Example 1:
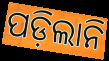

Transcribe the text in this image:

ପଡ଼ିଲାନି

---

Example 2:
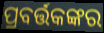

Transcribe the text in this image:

ପ୍ରବର୍ତ୍ତକଙ୍କର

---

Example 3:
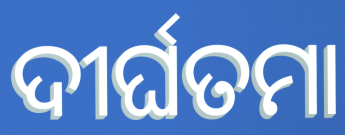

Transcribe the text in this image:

ଦୀର୍ଘତମା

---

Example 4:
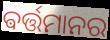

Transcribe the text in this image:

ଵର୍ତ୍ତମାନର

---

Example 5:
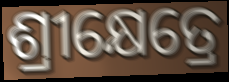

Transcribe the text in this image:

ଶ୍ରୀକ୍ଷେତ୍ରେ